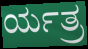
ರ್ಯತ್ರ